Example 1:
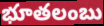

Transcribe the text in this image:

భూతలంబు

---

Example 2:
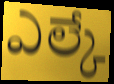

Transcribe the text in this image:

ఎల్కే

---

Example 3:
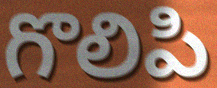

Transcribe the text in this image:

గొలిపి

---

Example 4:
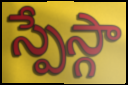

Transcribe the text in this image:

స్పేస్గా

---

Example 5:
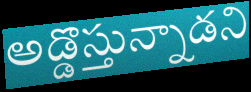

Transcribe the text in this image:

అడ్డొస్తున్నాడని